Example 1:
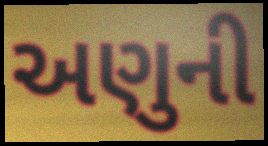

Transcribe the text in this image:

અણુની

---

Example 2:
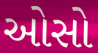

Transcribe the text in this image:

ઓસો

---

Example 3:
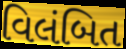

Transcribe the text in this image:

વિલંબિત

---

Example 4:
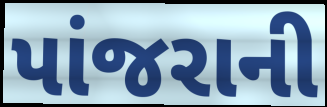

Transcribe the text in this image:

પાંજરાની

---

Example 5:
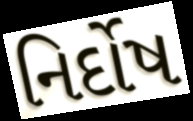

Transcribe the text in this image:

નિર્દોષ